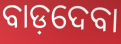
ବାଡ଼ଦେବା